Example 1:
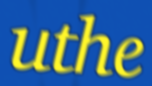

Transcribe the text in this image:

uthe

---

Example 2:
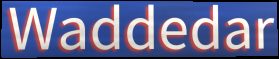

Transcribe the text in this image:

Waddedar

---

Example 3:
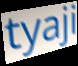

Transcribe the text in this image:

tyaji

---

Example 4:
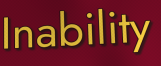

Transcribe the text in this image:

Inability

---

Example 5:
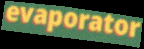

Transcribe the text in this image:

evaporator